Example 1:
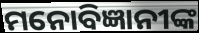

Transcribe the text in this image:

ମନୋବିଜ୍ଞାନୀଙ୍କ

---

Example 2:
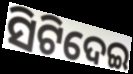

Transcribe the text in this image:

ସିଟିଦେଇ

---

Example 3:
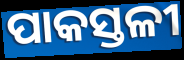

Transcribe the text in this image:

ପାକସ୍ତଳୀ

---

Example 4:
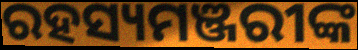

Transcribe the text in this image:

ରହସ୍ୟମଞ୍ଜରୀଙ୍କ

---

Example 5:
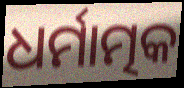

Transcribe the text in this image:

ଧର୍ମାତ୍ମକ